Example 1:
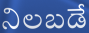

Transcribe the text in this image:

నిలబడే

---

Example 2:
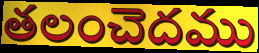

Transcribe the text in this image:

తలంచెదము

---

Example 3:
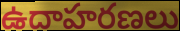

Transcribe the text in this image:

ఉదాహరణలు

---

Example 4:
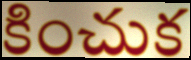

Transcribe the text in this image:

కించుక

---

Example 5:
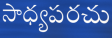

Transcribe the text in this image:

సాధ్యపరచు